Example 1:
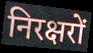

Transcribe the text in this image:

निरक्षरों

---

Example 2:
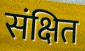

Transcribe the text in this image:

संक्षित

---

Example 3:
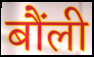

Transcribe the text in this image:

बौंली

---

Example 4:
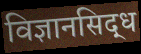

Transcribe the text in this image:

विज्ञानसिद्ध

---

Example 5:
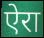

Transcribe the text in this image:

ऐरा